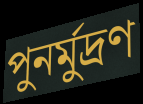
পুনর্মুদ্রণ